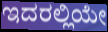
ಇದರಲ್ಲಿಯೇ